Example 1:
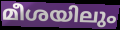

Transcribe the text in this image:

മീശയിലും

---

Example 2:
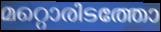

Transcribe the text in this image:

മറ്റൊരിടത്തോ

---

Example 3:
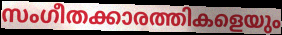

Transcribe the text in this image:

സംഗീതക്കാരത്തികളെയും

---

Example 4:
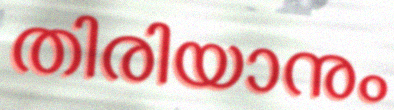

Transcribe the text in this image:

തിരിയാനും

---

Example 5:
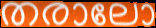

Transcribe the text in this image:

തരാലോ